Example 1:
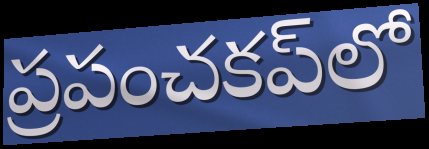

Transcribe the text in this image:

ప్రపంచకప్‌లో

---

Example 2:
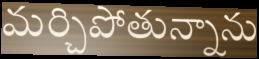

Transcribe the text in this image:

మర్చిపోతున్నాను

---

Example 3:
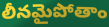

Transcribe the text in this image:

లీనమైపోతాం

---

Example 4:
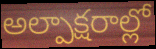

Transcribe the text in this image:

అల్పాక్షరాల్లో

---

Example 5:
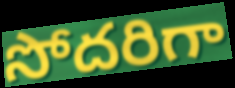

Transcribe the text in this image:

సోదరిగా